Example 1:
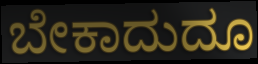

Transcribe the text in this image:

ಬೇಕಾದುದೂ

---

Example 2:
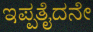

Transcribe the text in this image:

ಇಪ್ಪತೈದನೇ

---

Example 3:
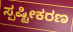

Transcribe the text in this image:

ಸ್ಪಷ್ಟೀಕರಣ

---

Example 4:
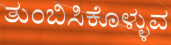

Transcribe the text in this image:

ತುಂಬಿಸಿಕೊಳ್ಳುವ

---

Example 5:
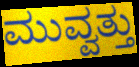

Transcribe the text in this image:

ಮುವ್ವತ್ತು